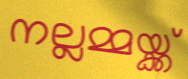
നല്ലമ്മയ്ക്ക്